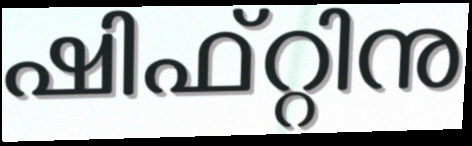
ഷിഫ്റ്റിനു